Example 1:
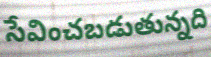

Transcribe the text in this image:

సేవించబడుతున్నది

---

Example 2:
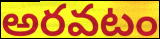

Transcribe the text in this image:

అరవటం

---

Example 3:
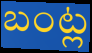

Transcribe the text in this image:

బంట్ల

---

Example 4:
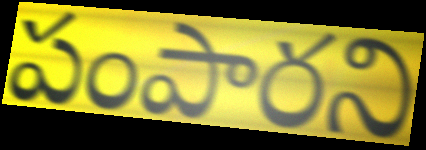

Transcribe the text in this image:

పంపారని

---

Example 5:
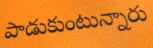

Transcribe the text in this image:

పాడుకుంటున్నారు